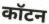
कॉटन